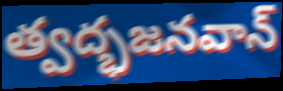
త్వద్భజనవాన్